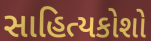
સાહિત્યકોશો